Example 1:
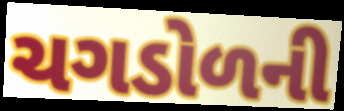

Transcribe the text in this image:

ચગડોળની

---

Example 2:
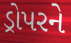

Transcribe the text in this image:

ડ્રોપરને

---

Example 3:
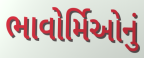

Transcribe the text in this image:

ભાવોર્મિઓનું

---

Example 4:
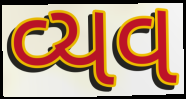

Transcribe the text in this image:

વ્યવ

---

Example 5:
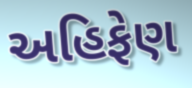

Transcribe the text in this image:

અહિફેણ